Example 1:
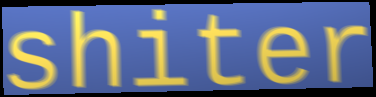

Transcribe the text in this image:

shiter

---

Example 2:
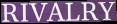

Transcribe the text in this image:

RIVALRY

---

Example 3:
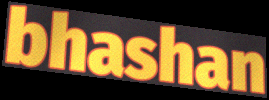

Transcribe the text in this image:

bhashan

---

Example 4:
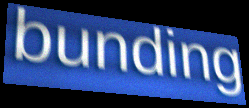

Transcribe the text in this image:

bunding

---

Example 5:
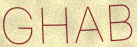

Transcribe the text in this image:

GHAB